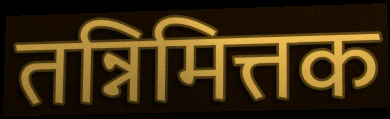
तन्निमित्तक